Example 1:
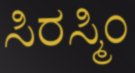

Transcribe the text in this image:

ಸಿರಸ್ಮಿಂ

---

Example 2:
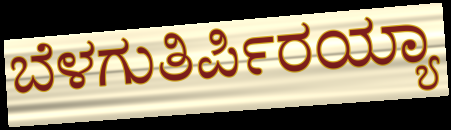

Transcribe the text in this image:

ಬೆಳಗುತಿರ್ಪಿರಯ್ಯಾ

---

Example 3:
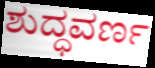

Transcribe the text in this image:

ಶುದ್ಧವರ್ಣ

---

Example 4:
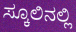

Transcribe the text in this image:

ಸ್ಕೂಲಿನಲ್ಲಿ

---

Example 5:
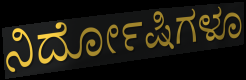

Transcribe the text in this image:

ನಿರ್ದೋಷಿಗಳೂ